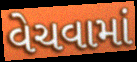
વેચવામાં